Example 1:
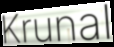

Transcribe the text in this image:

Krunal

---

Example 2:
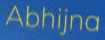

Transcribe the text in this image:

Abhijna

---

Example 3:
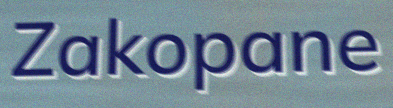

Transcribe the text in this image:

Zakopane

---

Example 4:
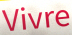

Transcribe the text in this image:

Vivre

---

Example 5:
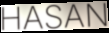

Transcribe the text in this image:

HASAN